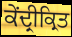
ਕੇਂਦ੍ਰੀਕ੍ਰਿਤ